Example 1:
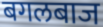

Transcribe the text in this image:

बगलबाज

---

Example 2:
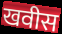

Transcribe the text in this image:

खवीस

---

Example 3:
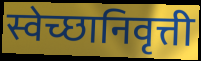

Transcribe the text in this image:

स्वेच्छानिवृत्ती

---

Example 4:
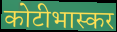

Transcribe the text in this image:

कोटीभास्कर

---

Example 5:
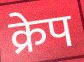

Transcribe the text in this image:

क्रेप